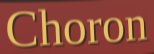
Choron